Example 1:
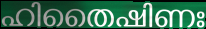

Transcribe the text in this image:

ഹിതൈഷിണഃ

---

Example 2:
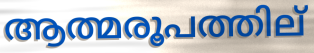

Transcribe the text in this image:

ആത്മരൂപത്തില്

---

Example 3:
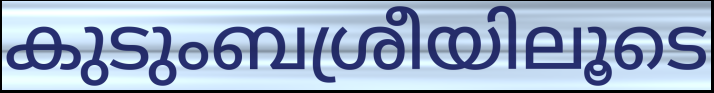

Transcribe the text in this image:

കുടുംബശ്രീയിലൂടെ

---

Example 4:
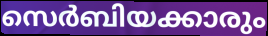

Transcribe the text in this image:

സെർബിയക്കാരും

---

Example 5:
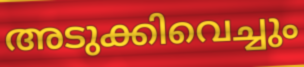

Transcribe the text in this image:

അടുക്കിവെച്ചും